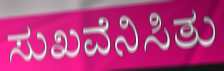
ಸುಖವೆನಿಸಿತು